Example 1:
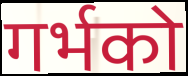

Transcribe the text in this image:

गर्भको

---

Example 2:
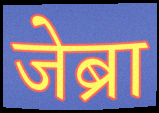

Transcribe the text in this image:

जेब्रा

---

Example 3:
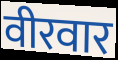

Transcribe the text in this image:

वीरवार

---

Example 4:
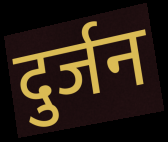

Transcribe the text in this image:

दुर्जन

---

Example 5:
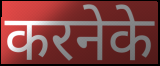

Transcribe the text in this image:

करनेके